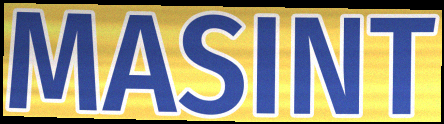
MASINT